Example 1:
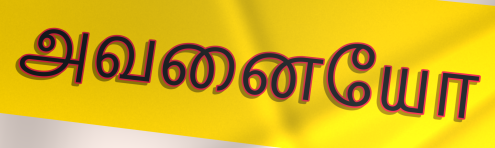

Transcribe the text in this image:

அவனையோ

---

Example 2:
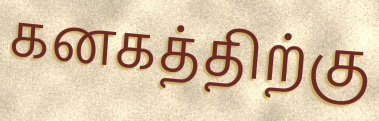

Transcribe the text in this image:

கனகத்திற்கு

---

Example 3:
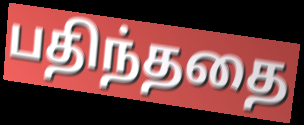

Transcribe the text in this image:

பதிந்ததை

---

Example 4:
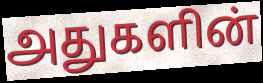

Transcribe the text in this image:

அதுகளின்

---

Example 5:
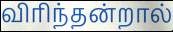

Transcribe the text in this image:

விரிந்தன்றால்